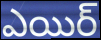
ఎయిర్